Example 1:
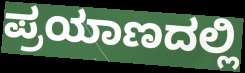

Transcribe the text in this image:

ಪ್ರಯಾಣದಲ್ಲಿ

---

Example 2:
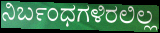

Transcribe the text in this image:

ನಿರ್ಬಂಧಗಳಿರಲಿಲ್ಲ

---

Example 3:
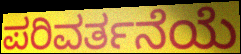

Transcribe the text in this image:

ಪರಿವರ್ತನೆಯೆ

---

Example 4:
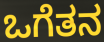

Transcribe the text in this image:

ಒಗೆತನ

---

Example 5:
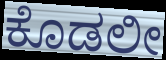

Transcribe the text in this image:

ಕೊಡಲೀ